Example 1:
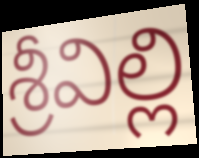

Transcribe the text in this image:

శ్రీవిల్లి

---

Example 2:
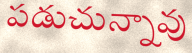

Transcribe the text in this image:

పడుచున్నావు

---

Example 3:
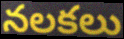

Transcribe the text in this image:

నలకలు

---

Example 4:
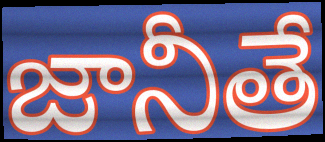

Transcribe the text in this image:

జానీతే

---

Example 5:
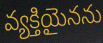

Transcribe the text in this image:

వ్యక్తియైనను